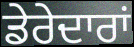
ਡੇਰੇਦਾਰਾਂ